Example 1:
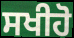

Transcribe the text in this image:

ਸਖੀਹੋ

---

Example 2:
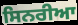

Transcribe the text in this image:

ਸਿਨਰੀਆ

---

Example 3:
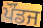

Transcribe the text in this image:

ਪੌਂਡਜ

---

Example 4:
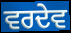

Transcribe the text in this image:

ਵਰਦੇਵ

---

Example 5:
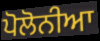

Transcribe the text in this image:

ਪੋਲੋਨੀਆ